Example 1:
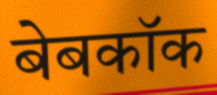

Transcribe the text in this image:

बेबकॉक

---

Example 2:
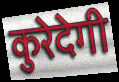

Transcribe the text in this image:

कुरेदेगी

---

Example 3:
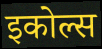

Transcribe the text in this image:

इकोल्स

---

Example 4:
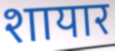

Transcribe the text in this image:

शायार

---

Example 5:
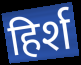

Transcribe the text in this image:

हिर्श